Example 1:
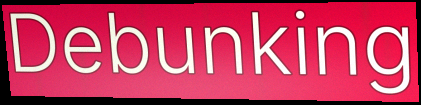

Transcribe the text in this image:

Debunking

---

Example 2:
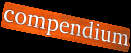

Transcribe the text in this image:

compendium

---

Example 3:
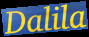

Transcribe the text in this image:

Dalila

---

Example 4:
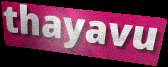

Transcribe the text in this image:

thayavu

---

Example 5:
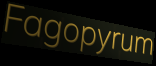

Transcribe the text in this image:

Fagopyrum